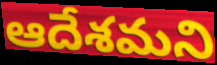
ఆదేశమని